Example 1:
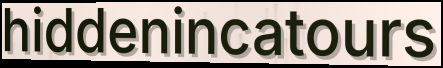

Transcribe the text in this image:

hiddenincatours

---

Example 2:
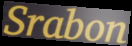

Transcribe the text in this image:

Srabon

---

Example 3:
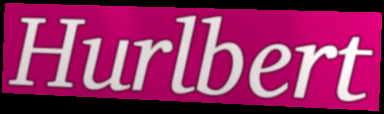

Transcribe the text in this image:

Hurlbert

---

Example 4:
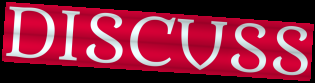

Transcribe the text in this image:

DISCUSS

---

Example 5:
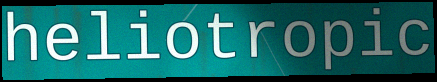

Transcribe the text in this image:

heliotropic